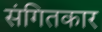
संगितकार